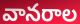
వానరాల